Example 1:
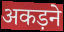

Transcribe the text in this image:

अकड़ने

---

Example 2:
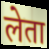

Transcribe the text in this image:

लेता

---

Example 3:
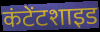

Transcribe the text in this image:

कंटेंटशाइड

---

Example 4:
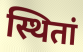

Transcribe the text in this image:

स्थितां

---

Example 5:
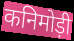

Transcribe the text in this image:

कनिमोड़ी